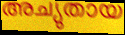
അച്യുതായ